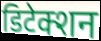
डिटेक्शन